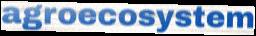
agroecosystem